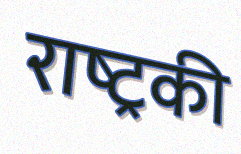
राष्ट्रकी